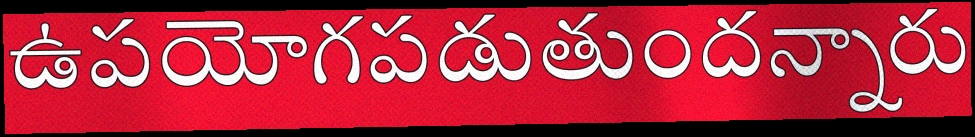
ఉపయోగపడుతుందన్నారు